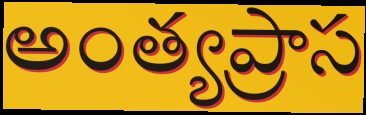
అంత్యప్రాస